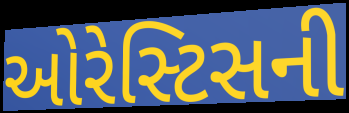
ઓરેસ્ટિસની